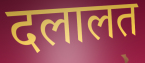
दलालत